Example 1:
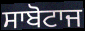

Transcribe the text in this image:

ਸਾਬੋਟਾਜ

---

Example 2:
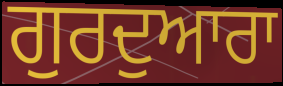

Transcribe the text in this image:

ਗੁਰਦੁਆਰਾ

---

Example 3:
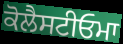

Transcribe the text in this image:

ਕੋਲੈਸਟੀਓਮਾ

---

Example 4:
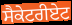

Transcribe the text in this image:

ਸੈਕੇਟਰੀਏਟ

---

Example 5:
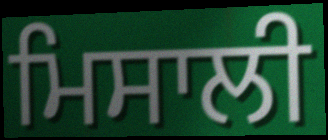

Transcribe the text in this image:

ਮਿਸਾਲੀ